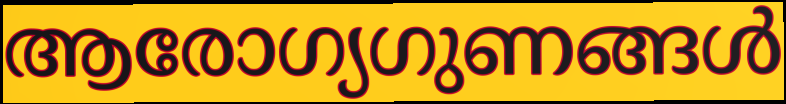
ആരോഗ്യഗുണങ്ങൾ